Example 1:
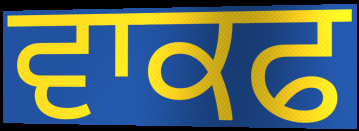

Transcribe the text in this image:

ਵਾਕਫ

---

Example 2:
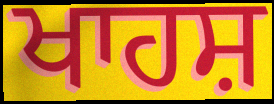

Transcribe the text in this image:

ਖਾਹਸ਼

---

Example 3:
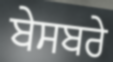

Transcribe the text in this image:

ਬੇਸਬਰੇ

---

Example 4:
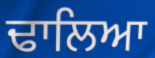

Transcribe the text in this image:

ਢਾਲਿਆ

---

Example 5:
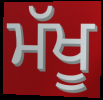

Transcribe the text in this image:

ਮੱਖੂ